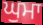
ਘੁਮਾ